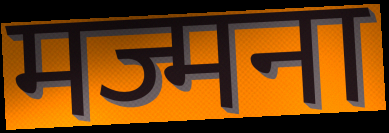
मज्मना